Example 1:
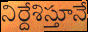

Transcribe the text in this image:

నిర్దేశిస్తూనే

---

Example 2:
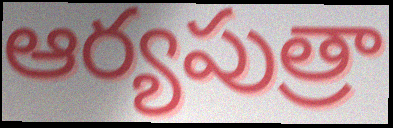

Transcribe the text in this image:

ఆర్యపుత్రా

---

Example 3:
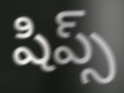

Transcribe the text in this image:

షిప్స్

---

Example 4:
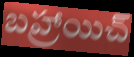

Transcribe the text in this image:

బహ్రాయిచ్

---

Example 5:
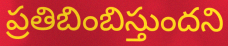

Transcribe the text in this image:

ప్రతిబింబిస్తుందని